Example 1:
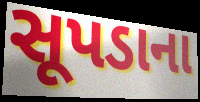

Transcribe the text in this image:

સૂપડાના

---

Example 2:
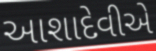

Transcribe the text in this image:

આશાદેવીએ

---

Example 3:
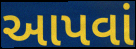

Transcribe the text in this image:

આપવાં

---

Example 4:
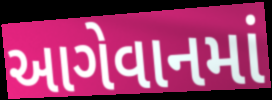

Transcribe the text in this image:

આગેવાનમાં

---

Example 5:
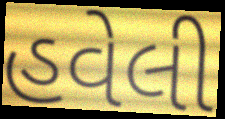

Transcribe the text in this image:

હવેલી